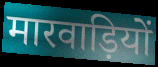
मारवाड़ियों